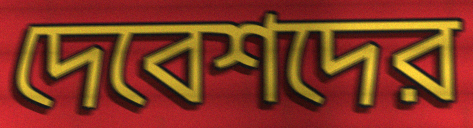
দেবেশদের